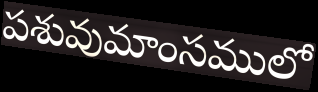
పశువుమాంసములో